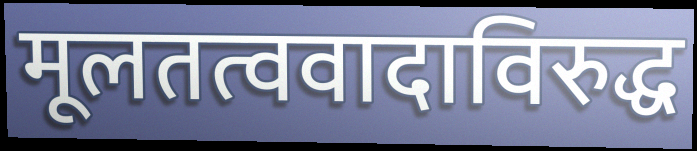
मूलतत्ववादाविरुद्ध